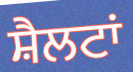
ਸ਼ੈਲਟਾਂ